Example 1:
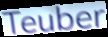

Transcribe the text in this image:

Teuber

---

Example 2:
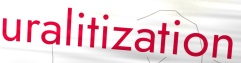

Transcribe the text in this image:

uralitization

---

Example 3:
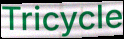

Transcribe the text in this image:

Tricycle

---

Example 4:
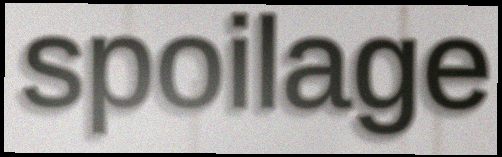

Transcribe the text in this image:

spoilage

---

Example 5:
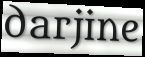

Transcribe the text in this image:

darjine